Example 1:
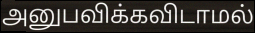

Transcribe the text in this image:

அனுபவிக்கவிடாமல்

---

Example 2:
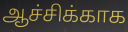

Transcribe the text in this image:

ஆச்சிக்காக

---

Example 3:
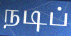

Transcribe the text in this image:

நடிப்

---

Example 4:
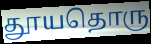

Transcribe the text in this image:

தூயதொரு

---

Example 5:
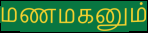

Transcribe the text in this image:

மணமகனும்